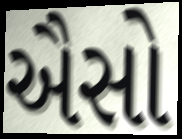
ઐસો